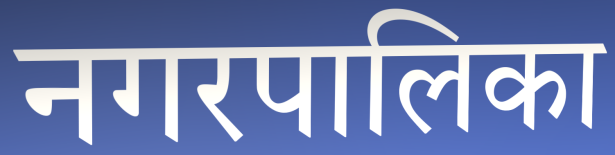
नगरपालिका